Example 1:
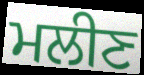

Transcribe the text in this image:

ਮਲੀਣ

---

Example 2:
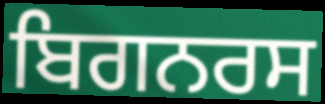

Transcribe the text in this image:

ਬਿਗਨਰਸ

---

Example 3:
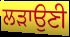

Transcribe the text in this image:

ਲੜਾਉਣੀ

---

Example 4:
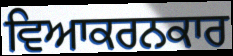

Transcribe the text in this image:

ਵਿਆਕਰਨਕਾਰ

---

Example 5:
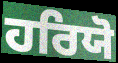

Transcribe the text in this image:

ਹਰਿਯੋ